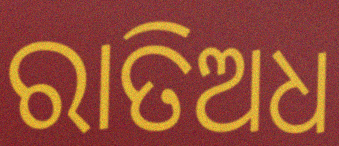
ରାତିଅଧ